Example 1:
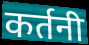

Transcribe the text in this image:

कर्तनी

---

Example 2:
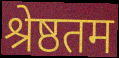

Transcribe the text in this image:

श्रेष्ठतम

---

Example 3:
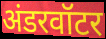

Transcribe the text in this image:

अंडरवॉटर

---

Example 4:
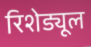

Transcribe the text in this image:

रिशेड्यूल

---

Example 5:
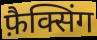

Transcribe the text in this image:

फ़ैक्सिंग